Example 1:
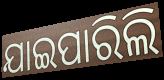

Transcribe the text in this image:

ଯାଇପାରିଲି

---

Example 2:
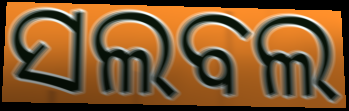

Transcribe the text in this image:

ସଲବଲ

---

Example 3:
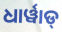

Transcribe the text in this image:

ଧାର୍ୱାଡ୍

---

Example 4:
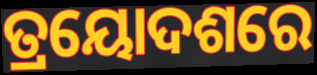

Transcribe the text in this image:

ତ୍ରୟୋଦଶରେ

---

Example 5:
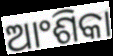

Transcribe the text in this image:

ଆଂଶିକା